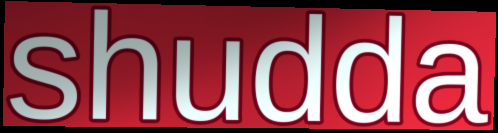
shudda